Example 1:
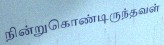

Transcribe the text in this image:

நின்றுகொண்டிருந்தவள்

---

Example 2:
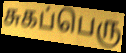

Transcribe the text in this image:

சுகப்பெரு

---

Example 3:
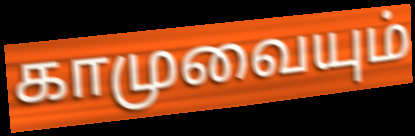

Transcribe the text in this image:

காமுவையும்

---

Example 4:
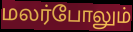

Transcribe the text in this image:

மலர்போலும்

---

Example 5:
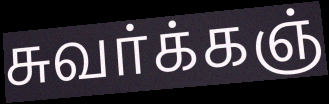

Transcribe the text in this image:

சுவர்க்கஞ்